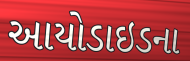
આયોડાઇડના